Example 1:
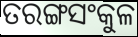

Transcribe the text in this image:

ତରଙ୍ଗସଂକୁଳ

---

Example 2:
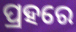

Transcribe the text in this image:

ପ୍ରହରେ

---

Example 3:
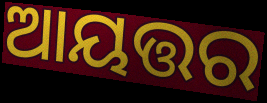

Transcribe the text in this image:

ଆୟତ୍ତର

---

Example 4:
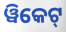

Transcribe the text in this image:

ୱିକେଟ୍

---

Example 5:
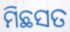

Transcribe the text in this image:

ମିଛସତ